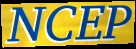
NCEP